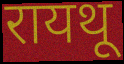
रायथू